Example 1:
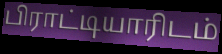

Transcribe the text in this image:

பிராட்டியாரிடம்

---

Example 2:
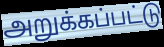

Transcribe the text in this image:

அறுக்கப்பட்டு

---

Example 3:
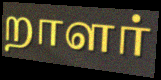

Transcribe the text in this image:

றாளர்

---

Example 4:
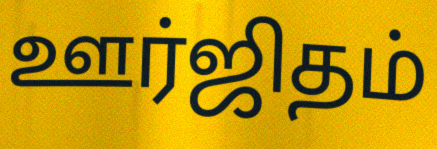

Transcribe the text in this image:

ஊர்ஜிதம்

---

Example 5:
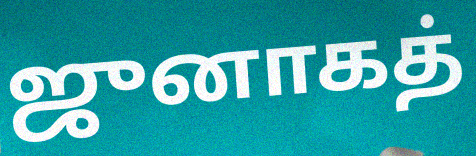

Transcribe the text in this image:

ஜுனாகத்